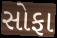
સોફા